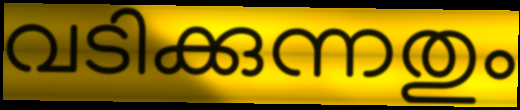
വടിക്കുന്നതും